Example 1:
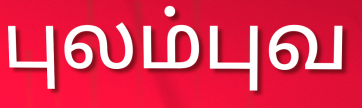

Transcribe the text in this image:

புலம்புவ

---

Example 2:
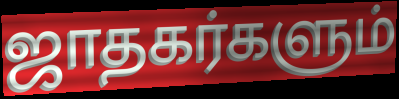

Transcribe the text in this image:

ஜாதகர்களும்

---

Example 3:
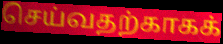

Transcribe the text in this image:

செய்வதற்காகக்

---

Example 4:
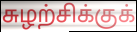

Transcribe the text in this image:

சுழற்சிக்குக்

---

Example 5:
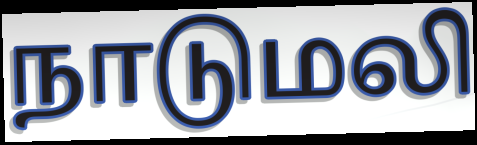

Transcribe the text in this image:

நாடுமலி